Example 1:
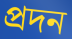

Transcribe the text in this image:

প্ৰদন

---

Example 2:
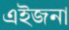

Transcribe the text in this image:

এইজনা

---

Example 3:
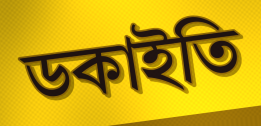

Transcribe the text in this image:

ডকাইতি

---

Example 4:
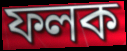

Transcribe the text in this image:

ফলক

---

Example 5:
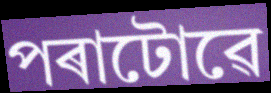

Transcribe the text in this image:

পৰাটোৱে